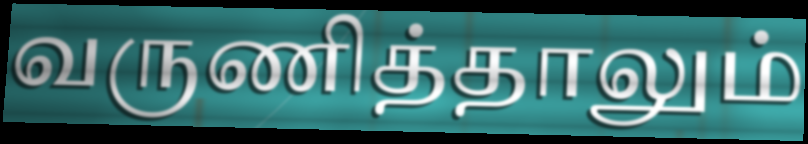
வருணித்தாலும்